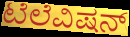
ಟೆಲೆವಿಷನ್